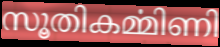
സൂതികൎമ്മിണി